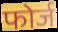
फोर्ज